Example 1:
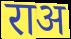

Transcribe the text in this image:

राअ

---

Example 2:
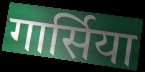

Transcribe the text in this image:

गार्सिया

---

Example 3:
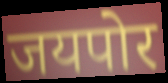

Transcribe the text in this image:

जयपोर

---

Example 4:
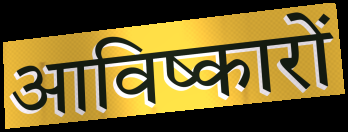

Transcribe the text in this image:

आविष्‍कारों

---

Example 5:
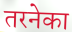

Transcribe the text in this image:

तरनेका